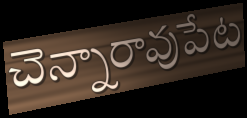
చెన్నారావుపేట